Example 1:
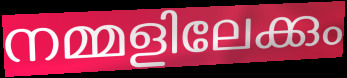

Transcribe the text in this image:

നമ്മളിലേക്കും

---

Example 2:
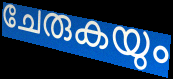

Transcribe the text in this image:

ചേരുകയും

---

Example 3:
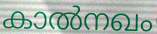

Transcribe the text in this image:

കാൽനഖം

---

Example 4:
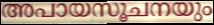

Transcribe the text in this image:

അപായസൂചനയും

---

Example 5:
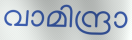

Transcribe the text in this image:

വാമിന്ദ്രാ